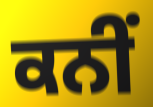
ਕਨੀਂ